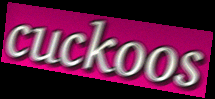
cuckoos